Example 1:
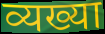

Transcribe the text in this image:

व्यख्या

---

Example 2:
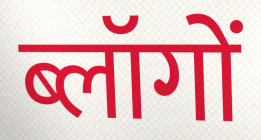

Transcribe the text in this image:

ब्‍लॉगों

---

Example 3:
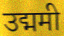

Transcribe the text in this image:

उद्ममी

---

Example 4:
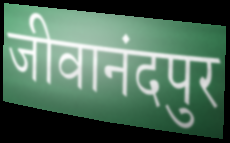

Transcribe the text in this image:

जीवानंदपुर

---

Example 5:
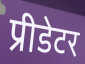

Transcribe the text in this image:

प्रीडेटर